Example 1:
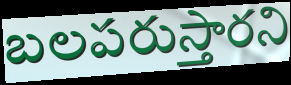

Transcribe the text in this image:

బలపరుస్తారని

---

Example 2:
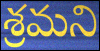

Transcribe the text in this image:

శ్రమని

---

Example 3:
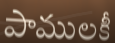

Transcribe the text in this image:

పాములకీ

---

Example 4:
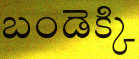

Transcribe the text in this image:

బండెక్కి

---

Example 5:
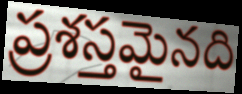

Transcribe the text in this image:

ప్రశస్తమైనది